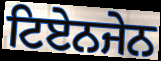
ਟਿਏਨਜੇਨ